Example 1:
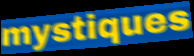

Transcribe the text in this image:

mystiques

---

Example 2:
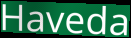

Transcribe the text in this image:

Haveda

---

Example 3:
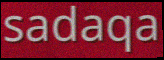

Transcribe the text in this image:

sadaqa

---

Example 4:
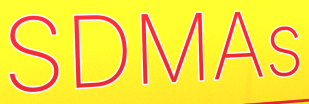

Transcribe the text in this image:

SDMAs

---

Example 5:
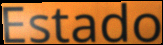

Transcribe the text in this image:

Estado